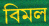
বিমল